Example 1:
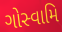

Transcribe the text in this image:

ગોસ્વામિ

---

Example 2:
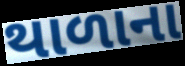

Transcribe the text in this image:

થાળાના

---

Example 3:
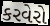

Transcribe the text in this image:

કરવેરો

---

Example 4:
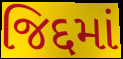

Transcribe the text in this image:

જિદ્દમાં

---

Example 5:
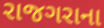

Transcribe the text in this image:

રાજગરાના